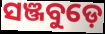
ସଞ୍ଜବୁଡ଼େ